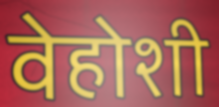
वेहोशी